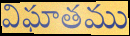
విఘాతము